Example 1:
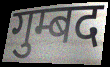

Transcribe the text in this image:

गुम्बद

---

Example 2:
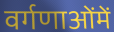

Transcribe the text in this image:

वर्गणाओंमें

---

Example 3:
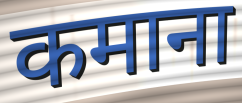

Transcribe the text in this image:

कमाना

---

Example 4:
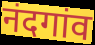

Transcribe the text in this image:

नंदगांव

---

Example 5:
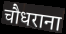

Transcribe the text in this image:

चौधराना